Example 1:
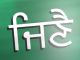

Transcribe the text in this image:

ਜਿਣੈ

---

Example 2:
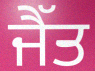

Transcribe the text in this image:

ਜੈੱਤ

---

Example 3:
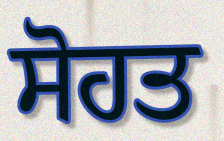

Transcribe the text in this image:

ਸੋਹਤ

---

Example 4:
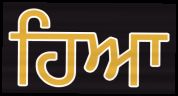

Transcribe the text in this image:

ਹਿਆ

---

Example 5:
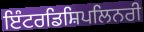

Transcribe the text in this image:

ਇੰਟਰਡਿਸ਼ਿਪਲਿਨਰੀ